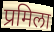
प्रमिला